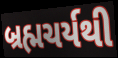
બ્રહ્મચર્યથી